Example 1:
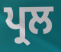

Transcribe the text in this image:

ਪ੍ਰਲ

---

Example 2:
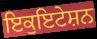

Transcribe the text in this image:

ਇਕੁਇਟੇਸ਼ਨ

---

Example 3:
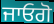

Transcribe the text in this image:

ਜਾਓਗੋ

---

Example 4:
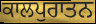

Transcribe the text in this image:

ਕਾਲਪੁਰਾਤਨ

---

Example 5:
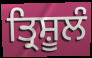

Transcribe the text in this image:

ਤ੍ਰਿਸ਼ੂਲੰ